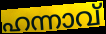
ഹന്നാവ്